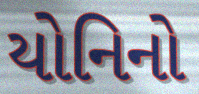
યોનિનો